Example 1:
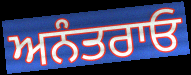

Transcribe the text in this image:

ਅਨੰਤਰਾਓ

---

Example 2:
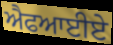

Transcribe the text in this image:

ਐਫਆਈਏ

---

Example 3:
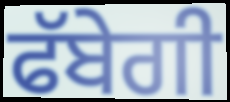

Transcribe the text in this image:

ਫੱਬੇਗੀ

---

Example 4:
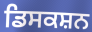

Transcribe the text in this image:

ਡਿਸਕਸ਼ਨ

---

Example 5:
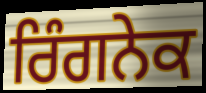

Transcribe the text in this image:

ਰਿੰਗਨੇਕ